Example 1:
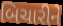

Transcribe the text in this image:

બિચારીને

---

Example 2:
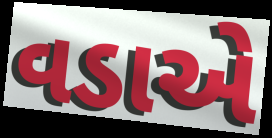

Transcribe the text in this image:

વડાએ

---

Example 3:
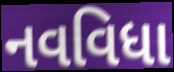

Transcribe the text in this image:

નવવિધા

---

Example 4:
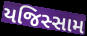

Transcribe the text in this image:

યજિસ્સામ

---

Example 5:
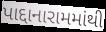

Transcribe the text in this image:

પાદ્દાનારામમાંથી